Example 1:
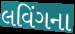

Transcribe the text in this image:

લવિંગના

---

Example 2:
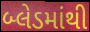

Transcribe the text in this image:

બ્લેડમાંથી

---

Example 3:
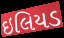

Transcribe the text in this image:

ઇલિયડ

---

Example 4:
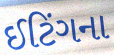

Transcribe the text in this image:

ઈટિંગના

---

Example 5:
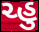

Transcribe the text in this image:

ચ્હુ